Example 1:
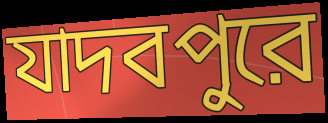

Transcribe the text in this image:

যাদবপুরে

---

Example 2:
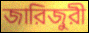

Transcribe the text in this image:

জারিজুরী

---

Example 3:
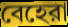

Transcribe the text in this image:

বেহেরা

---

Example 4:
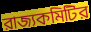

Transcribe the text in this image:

রাজ্যকমিটির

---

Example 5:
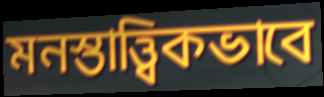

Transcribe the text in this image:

মনস্তাত্ত্বিকভাবে